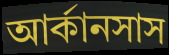
আর্কানসাস